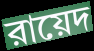
রায়েদ